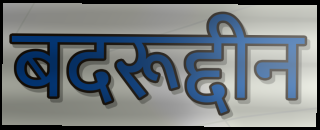
बदरूद्दीन